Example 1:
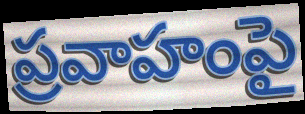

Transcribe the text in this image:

ప్రవాహంపై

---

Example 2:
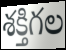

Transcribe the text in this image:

శక్తిగల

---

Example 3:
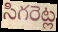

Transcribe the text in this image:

సిగరెట్ల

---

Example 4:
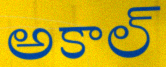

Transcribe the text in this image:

అకాల్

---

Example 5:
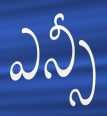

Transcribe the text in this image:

ఎన్సీ